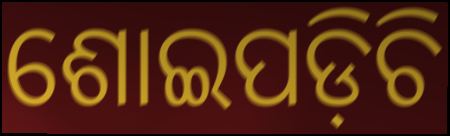
ଶୋଇପଡ଼ିଚି